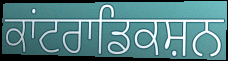
ਕਾਂਟਰਾਡਿਕਸ਼ਨ